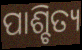
ପାଶ୍ଚିତ୍ୟ